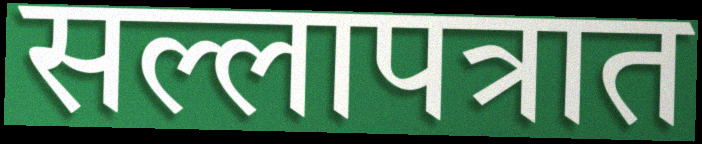
सल्लापत्रात